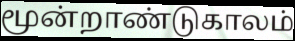
மூன்றாண்டுகாலம்